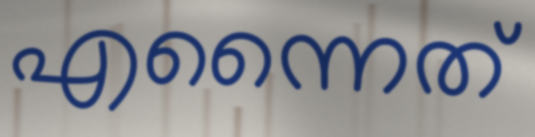
എന്നൈത്